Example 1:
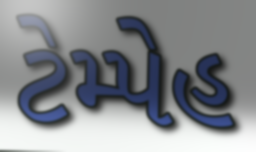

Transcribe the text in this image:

ટેમ્પેહ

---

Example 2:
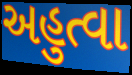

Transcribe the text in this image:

અહુત્વા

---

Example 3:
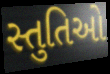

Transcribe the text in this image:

સ્તુતિઓ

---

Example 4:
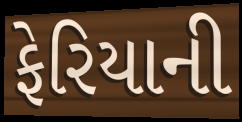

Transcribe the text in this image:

ફેરિયાની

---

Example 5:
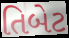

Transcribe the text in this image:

તિબેટ